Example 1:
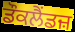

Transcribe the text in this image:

ਡੌਕਲੈਂਡਜ਼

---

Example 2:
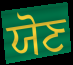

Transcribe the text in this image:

ਯੋਣ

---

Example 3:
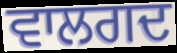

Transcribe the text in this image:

ਵਾਲਗਦ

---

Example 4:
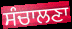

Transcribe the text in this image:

ਸੰਚਾਲਣਾ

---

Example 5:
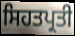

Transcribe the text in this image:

ਸਿਹਤਪ੍ਰਤੀ